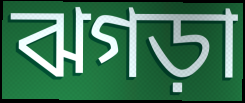
ঝগড়া